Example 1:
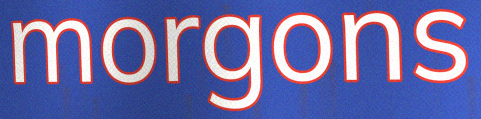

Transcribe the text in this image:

morgons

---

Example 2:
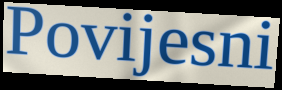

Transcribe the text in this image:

Povijesni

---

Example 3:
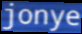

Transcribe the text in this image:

jonye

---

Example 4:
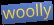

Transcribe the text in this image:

woolly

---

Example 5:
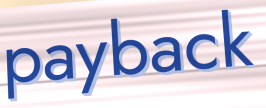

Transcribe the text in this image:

payback